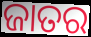
ଜାତର